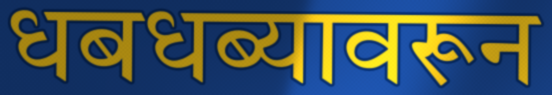
धबधब्यावरून